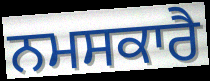
ਨਮਸਕਾਰੈ